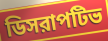
ডিসরাপটিভ